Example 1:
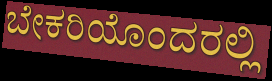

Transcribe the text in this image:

ಬೇಕರಿಯೊಂದರಲ್ಲಿ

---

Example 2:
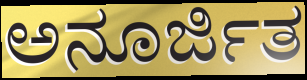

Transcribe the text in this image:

ಅನೂರ್ಜಿತ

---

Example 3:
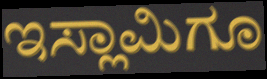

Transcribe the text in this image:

ಇಸ್ಲಾಮಿಗೂ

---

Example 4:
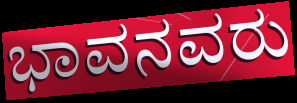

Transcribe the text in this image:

ಭಾವನವರು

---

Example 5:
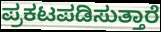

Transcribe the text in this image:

ಪ್ರಕಟಪಡಿಸುತ್ತಾರೆ